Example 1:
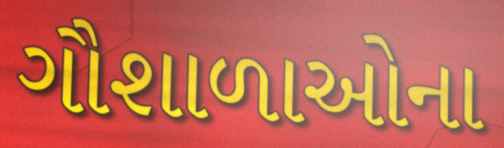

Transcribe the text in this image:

ગૌશાળાઓના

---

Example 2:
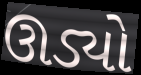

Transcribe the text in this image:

ઊડ્યો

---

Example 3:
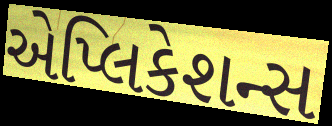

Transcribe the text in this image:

એપ્લિકેશન્સ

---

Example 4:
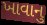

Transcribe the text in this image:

ખાવાનુ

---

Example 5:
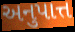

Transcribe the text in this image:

અનુપાત્ત